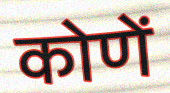
कोणें